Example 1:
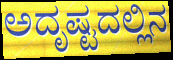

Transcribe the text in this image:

ಅದೃಷ್ಟದಲ್ಲಿನ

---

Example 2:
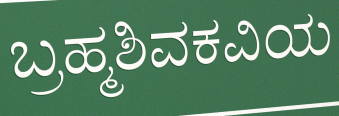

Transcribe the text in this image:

ಬ್ರಹ್ಮಶಿವಕವಿಯ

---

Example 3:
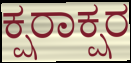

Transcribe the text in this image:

ಕ್ಷರಾಕ್ಷರ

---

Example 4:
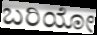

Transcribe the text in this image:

ಬರಿಯೋ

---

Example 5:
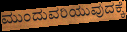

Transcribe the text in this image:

ಮುಂದುವರಿಯುವುದಕ್ಕೆ